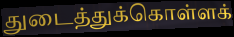
துடைத்துக்கொள்ளக்